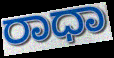
ರಾಧಾ